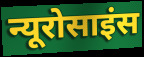
न्यूरोसाइंस